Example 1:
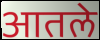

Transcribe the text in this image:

आतले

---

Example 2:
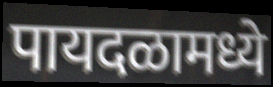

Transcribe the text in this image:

पायदळामध्ये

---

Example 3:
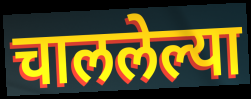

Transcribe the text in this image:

चाललेल्या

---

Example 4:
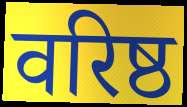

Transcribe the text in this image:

वरिष्ठ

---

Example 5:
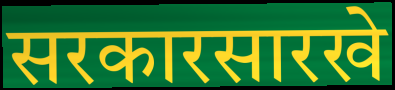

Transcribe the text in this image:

सरकारसारखे